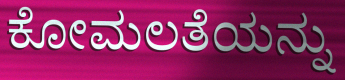
ಕೋಮಲತೆಯನ್ನು